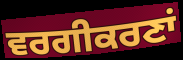
ਵਰਗੀਕਰਣਾਂ